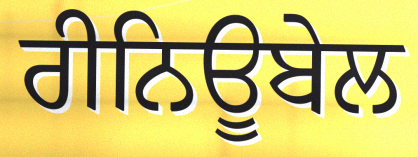
ਰੀਨਿਊਬੇਲ